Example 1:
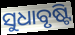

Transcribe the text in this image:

ସୁଧାବୃଷ୍ଟି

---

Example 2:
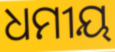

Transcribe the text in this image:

ଧମୀୟ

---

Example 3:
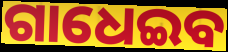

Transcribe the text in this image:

ଗାଧେଇବ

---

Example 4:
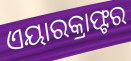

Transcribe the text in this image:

ଏୟାରକ୍ରାଫ୍ଟର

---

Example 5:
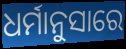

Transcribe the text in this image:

ଧର୍ମାନୁସାରେ